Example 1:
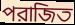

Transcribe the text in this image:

পরাজিত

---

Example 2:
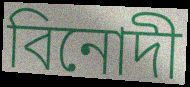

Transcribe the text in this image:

বিনোদী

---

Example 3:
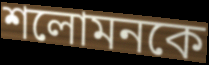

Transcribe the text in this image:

শলোমনকে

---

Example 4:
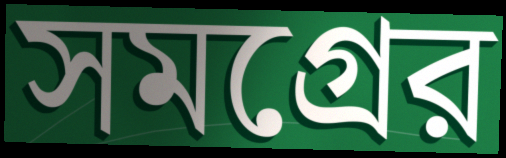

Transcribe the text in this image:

সমগ্রের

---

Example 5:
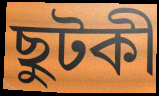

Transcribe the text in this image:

ছুটকী